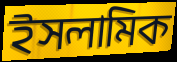
ইসলামিক